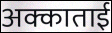
अक्काताई